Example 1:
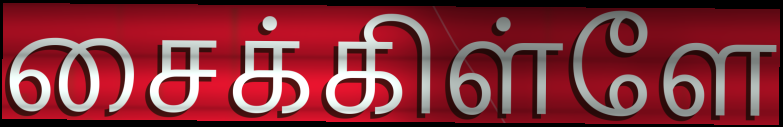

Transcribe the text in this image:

சைக்கிள்ளே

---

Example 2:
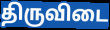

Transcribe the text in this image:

திருவிடை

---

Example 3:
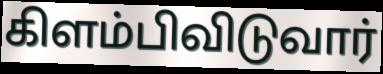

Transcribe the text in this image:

கிளம்பிவிடுவார்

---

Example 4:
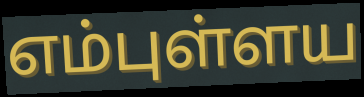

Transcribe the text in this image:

எம்புள்ளய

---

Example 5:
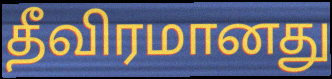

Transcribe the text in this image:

தீவிரமானது